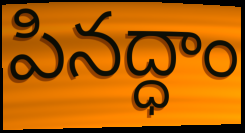
పినద్ధాం